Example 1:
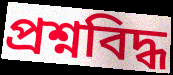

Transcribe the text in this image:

প্রশ্নবিদ্ধ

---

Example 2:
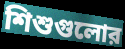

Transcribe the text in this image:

শিশুগুলোর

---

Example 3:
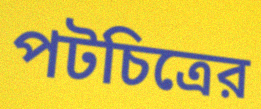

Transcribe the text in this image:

পটচিত্রের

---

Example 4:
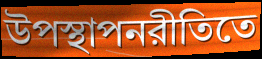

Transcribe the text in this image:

উপস্থাপনরীতিতে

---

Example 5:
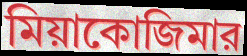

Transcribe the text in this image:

মিয়াকোজিমার